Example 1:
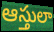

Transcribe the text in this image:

ఆస్తులా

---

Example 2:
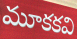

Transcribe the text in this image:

మూకకవి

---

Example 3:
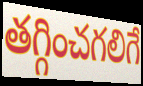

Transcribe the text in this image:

తగ్గించగలిగే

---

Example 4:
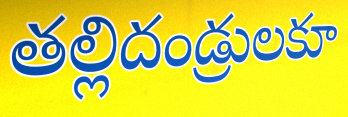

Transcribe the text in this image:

తల్లిదండ్రులకూ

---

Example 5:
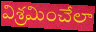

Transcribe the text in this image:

విశ్రమించేలా